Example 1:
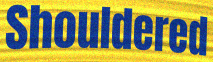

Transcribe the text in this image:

Shouldered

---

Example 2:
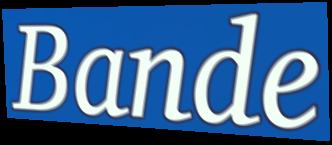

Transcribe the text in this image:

Bande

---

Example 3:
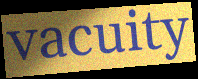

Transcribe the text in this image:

vacuity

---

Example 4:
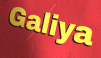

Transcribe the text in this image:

Galiya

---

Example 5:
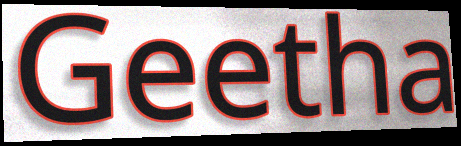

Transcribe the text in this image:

Geetha